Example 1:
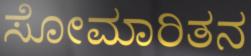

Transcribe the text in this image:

ಸೋಮಾರಿತನ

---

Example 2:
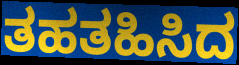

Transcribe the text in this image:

ತಹತಹಿಸಿದ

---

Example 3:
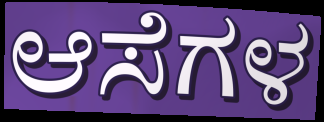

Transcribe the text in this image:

ಆಸೆಗಳ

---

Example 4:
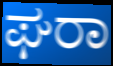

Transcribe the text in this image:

ಘರಾ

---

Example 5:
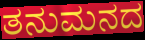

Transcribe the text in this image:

ತನುಮನದ